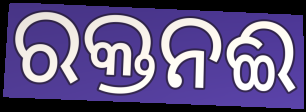
ରକ୍ତନଈ